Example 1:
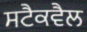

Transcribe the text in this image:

ਸਟੈਕਵੈਲ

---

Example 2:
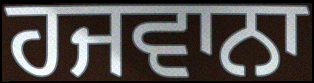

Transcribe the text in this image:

ਹਜਵਾਨਾ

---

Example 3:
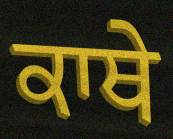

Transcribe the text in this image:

ਕਾਥੇ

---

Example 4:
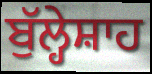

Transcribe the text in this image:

ਬੁੱਲ੍ਹੇਸ਼ਾਹ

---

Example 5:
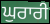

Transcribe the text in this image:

ਘੁਰਾਰੀ